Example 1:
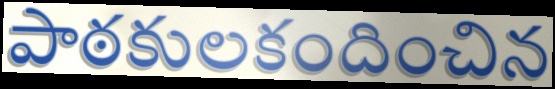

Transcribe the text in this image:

పాఠకులకందించిన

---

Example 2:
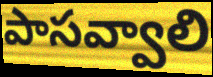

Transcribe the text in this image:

పాసవ్వాలి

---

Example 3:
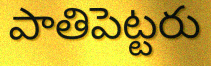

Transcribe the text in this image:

పాతిపెట్టరు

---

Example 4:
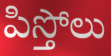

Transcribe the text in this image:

పిస్తోలు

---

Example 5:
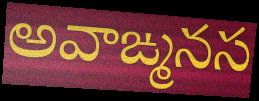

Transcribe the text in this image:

అవాఙ్మనస